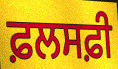
ਫ਼ਲਸਫ਼ੀ